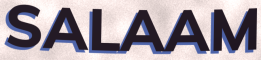
SALAAM